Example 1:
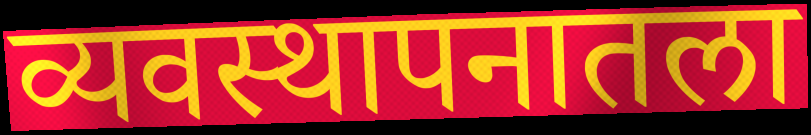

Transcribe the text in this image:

व्यवस्थापनातला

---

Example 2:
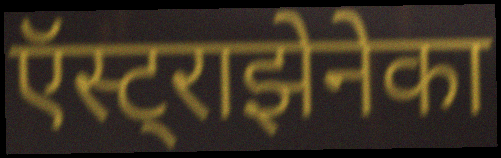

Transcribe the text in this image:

ऍस्ट्राझेनेका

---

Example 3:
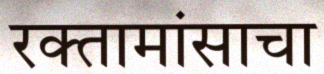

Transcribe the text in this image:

रक्तामांसाचा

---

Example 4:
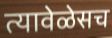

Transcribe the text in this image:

त्यावेळेसच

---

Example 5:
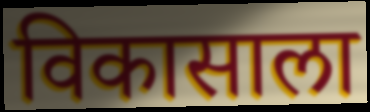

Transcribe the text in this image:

विकासाला